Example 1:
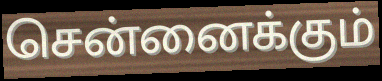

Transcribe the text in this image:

சென்னைக்கும்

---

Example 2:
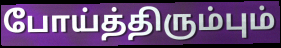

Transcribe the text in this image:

போய்த்திரும்பும்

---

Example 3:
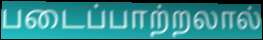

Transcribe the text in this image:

படைப்பாற்றலால்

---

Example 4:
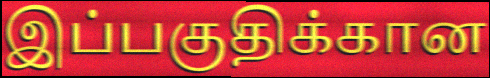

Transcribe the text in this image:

இப்பகுதிக்கான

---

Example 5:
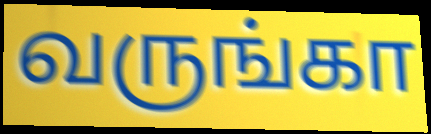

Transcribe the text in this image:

வருங்கா